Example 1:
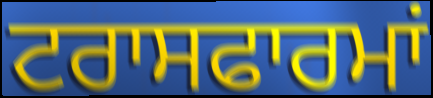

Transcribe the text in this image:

ਟਰਾਸਫਾਰਮਾਂ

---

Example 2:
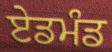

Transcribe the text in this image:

ਏਡਮੰਡ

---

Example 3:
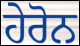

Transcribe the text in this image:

ਹੇਰੋਨ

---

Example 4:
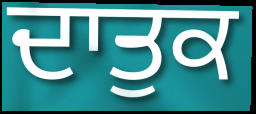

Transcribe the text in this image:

ਦਾਤੁਕ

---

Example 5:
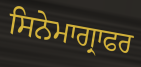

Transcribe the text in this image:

ਸਿਨੇਮਾਗ੍ਰਾਫਰ